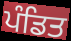
ਪੰਡਿਤ